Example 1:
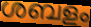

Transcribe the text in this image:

ശബളം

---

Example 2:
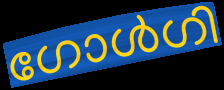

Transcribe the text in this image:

ഗോൾഗി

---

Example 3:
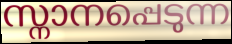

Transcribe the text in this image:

സ്നാനപ്പെടുന്ന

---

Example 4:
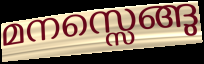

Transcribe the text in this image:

മനസ്സെങ്ങു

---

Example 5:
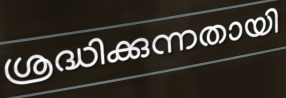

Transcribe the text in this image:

ശ്രദ്ധിക്കുന്നതായി